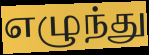
எழுந்து